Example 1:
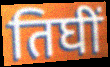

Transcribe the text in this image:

तिघीं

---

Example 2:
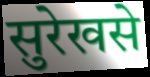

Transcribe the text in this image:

सुरेखसे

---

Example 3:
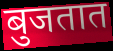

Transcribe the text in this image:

बुजतात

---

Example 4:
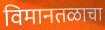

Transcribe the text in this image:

विमानतळाचा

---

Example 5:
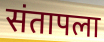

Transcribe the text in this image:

संतापला